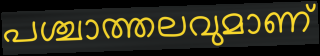
പശ്ചാത്തലവുമാണ്